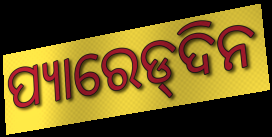
ପ୍ୟାରେଡ୍‌ଦିନ